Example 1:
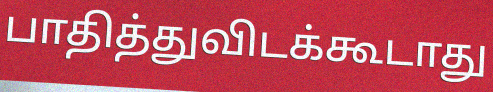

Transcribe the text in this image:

பாதித்துவிடக்கூடாது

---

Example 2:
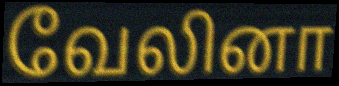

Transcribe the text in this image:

வேலினா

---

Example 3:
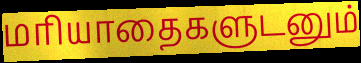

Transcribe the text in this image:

மரியாதைகளுடனும்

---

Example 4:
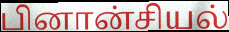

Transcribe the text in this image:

பினான்சியல்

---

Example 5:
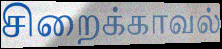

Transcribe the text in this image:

சிறைக்காவல்